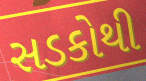
સડકોથી